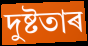
দুষ্টতাৰ